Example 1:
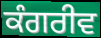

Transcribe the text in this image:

ਕੰਗਰੀਵ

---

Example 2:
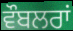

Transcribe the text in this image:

ਵੌਬਲਰਾਂ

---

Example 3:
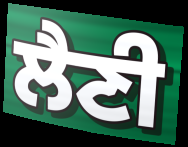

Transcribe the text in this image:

ਲੈਣੀ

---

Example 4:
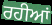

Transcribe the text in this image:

ਰਹੀਆਂ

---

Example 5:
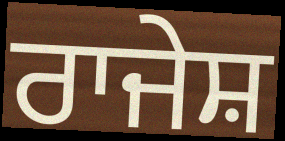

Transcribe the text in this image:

ਰਾਜੇਸ਼